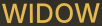
WIDOW